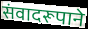
संवादरूपाने